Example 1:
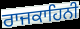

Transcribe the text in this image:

ਰਾਜਕਾਹਿਨੀ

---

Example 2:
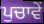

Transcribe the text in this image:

ਪੁਚਾਵੇਂ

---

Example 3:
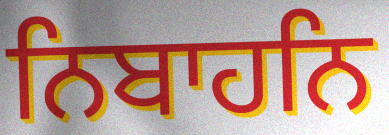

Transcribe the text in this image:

ਨਿਬਾਹਨਿ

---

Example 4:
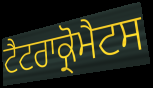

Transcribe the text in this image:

ਟੈਟਰਾਕ੍ਰੋਮੈਟਸ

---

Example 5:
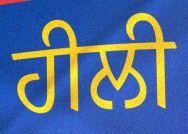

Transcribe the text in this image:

ਹੀਲੀ